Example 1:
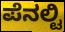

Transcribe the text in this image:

ಪೆನಲ್ಟಿ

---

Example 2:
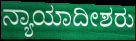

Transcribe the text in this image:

ನ್ಯಾಯಾದೀಶರು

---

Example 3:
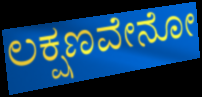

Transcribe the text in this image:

ಲಕ್ಷಣವೇನೋ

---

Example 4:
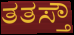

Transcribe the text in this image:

ತತಸ್ತೌ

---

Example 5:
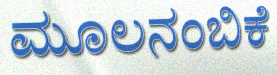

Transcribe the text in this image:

ಮೂಲನಂಬಿಕೆ